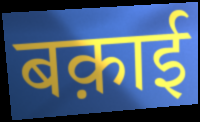
बक़ाई